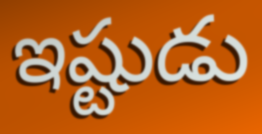
ఇష్టుడు